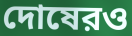
দোষেরও